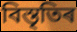
বিস্তৃতিৰ